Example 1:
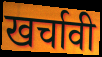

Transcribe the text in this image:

खर्चावी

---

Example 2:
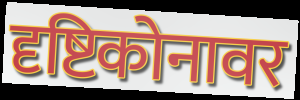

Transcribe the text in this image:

दृष्टिकोनावर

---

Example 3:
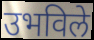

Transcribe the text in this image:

उभविले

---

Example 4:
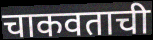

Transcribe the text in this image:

चाकवताची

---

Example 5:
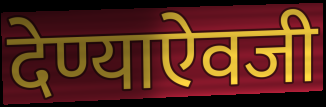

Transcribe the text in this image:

देण्याऐवजी